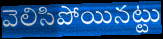
వెలిసిపోయినట్టు